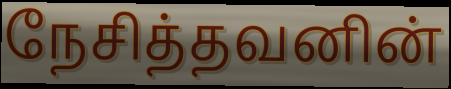
நேசித்தவனின்